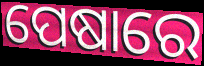
ପେଷାରେ